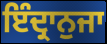
ਇੰਦ੍ਰਾਨੁਜਾ